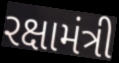
રક્ષામંત્રી